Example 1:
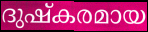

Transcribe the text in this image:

ദുഷ്കരമായ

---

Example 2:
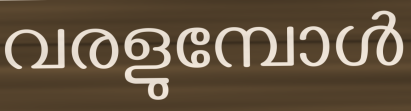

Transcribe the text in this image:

വരളുമ്പോൾ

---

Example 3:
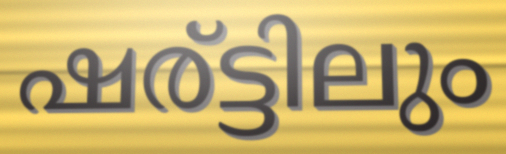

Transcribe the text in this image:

ഷര്ട്ടിലും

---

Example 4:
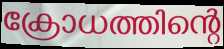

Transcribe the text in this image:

ക്രോധത്തിന്റെ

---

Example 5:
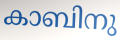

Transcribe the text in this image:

കാബിനു